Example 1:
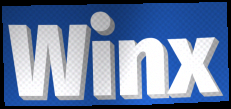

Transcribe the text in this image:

Winx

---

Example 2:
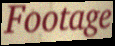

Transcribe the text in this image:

Footage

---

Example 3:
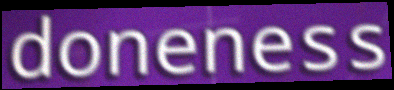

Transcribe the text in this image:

doneness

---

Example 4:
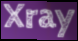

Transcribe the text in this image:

Xray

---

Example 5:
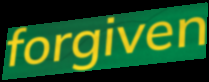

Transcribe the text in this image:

forgiven